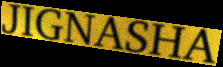
JIGNASHA